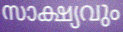
സാക്ഷ്യവും